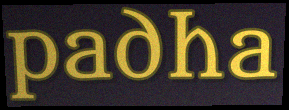
padha